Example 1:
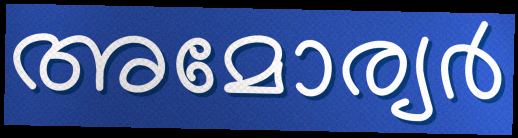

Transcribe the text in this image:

അമോര്യർ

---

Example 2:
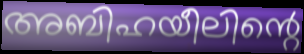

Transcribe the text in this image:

അബിഹയീലിന്റെ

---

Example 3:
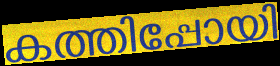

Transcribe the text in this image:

കത്തിപ്പോയി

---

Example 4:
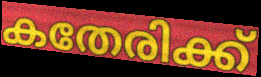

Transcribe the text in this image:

കതേരിക്ക്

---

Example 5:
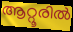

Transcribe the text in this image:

ആറ്റൂരിൽ